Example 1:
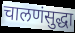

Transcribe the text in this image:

चालणंसुद्धा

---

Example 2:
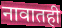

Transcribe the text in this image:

नावातही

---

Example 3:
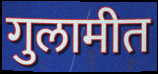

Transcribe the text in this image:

गुलामीत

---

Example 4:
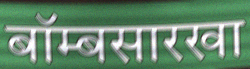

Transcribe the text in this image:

बॉम्बसारखा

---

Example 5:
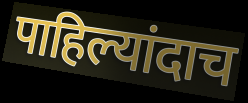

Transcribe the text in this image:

पाहिल्यांदाच